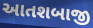
આતશબાજી